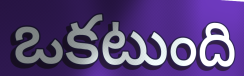
ఒకటుంది